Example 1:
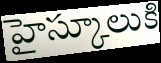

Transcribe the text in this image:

హైస్కూలుకి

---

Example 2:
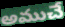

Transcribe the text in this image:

అముచే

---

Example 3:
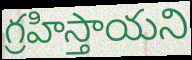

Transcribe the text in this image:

గ్రహిస్తాయని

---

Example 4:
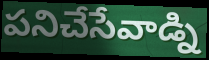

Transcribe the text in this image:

పనిచేసేవాడ్ని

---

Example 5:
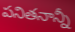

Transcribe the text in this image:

పనితనాన్నీ